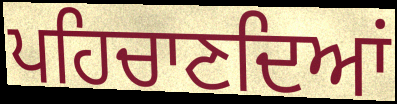
ਪਹਿਚਾਣਦਿਆਂ